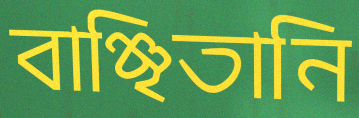
বাঞ্ছিতানি